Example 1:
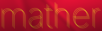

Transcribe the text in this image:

mather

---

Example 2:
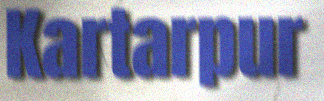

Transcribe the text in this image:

Kartarpur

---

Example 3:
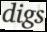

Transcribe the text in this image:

digs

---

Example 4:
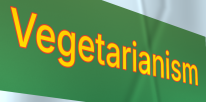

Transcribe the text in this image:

Vegetarianism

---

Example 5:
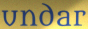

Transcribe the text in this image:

undar